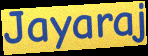
Jayaraj